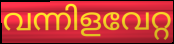
വന്നിളവേറ്റ